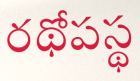
రథోపస్థ